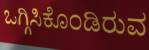
ಒಗ್ಗಿಸಿಕೊಂಡಿರುವ